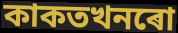
কাকতখনৰো